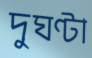
দুঘণ্টা